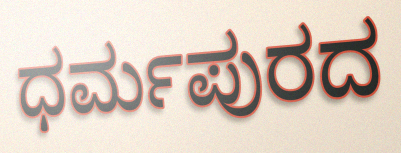
ಧರ್ಮಪುರದ